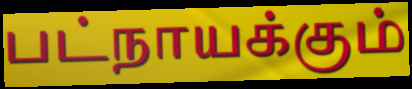
பட்நாயக்கும்